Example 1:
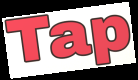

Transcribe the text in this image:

Tap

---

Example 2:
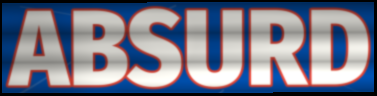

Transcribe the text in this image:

ABSURD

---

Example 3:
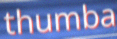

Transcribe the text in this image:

thumba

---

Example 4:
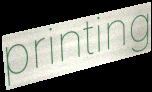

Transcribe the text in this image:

printing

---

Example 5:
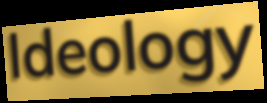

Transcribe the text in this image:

Ideology